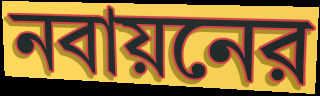
নবায়নের